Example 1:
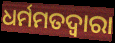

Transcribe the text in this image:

ଧର୍ମମତଦ୍ୱାରା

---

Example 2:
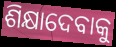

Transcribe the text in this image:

ଶିକ୍ଷାଦେବାକୁ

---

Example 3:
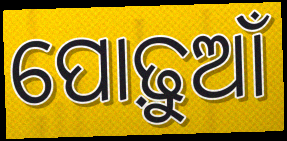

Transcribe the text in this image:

ପୋଢ଼ୁଆଁ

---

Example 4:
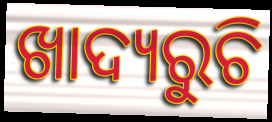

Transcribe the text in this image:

ଖାଦ୍ୟରୁଚି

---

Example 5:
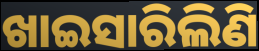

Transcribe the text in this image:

ଖାଇସାରିଲିଣି